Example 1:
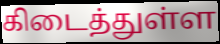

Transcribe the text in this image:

கிடைத்துள்ள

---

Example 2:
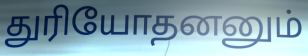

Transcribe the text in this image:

துரியோதனனும்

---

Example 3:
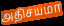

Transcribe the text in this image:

அதிசயமா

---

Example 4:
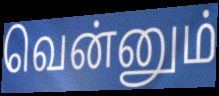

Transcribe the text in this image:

வென்னும்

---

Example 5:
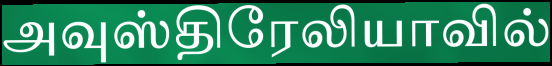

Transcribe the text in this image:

அவுஸ்திரேலியாவில்